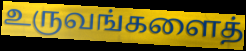
உருவங்களைத்